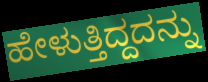
ಹೇಳುತ್ತಿದ್ದದನ್ನು